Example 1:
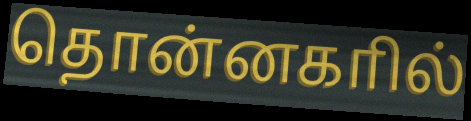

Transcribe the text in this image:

தொன்னகரில்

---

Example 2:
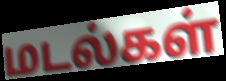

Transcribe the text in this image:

மடல்கள்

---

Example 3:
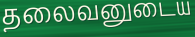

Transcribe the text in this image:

தலைவனுடைய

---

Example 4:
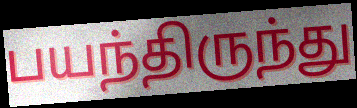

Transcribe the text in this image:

பயந்திருந்து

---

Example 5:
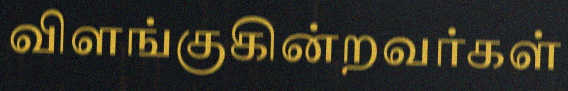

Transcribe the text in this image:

விளங்குகின்றவர்கள்